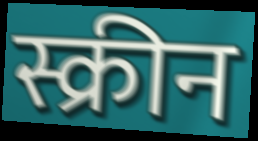
स्क्रीन